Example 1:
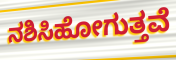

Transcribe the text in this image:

ನಶಿಸಿಹೋಗುತ್ತವೆ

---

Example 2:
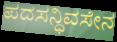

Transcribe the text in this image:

ಪದಸನ್ಧಿವಸೇನ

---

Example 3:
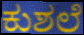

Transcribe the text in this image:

ಕುಶಲೆ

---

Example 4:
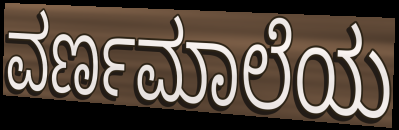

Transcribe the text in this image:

ವರ್ಣಮಾಲೆಯ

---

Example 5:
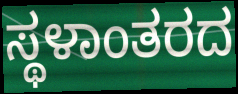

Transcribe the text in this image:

ಸ್ಥಳಾಂತರದ